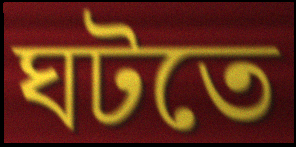
ঘটতে